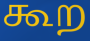
கூற